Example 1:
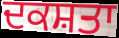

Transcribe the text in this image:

ਦਕਸ਼ਤਾ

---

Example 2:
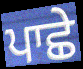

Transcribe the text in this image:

ਪਾਛੇ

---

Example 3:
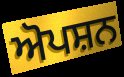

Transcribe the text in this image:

ਅੋਪਸ਼ਨ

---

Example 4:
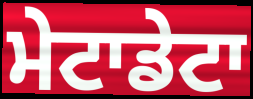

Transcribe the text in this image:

ਮੇਟਾਡੇਟਾ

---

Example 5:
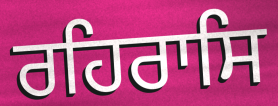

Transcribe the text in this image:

ਰਹਿਰਾਸਿ